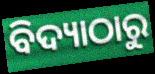
ବିଦ୍ୟାଠାରୁ